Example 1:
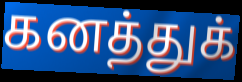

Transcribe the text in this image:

கனத்துக்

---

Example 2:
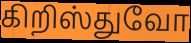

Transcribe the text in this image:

கிறிஸ்துவோ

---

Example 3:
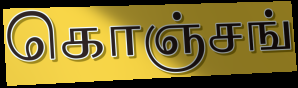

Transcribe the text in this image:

கொஞ்சங்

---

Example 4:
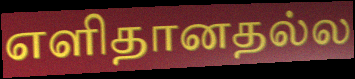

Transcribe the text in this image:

எளிதானதல்ல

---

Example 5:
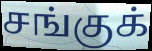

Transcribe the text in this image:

சங்குக்